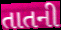
તાતની